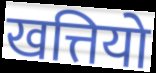
खत्तियो